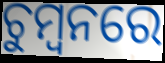
ଚୁମ୍ୱନରେ